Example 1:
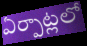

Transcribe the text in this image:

ఏర్పాట్లలో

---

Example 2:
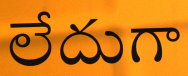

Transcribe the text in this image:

లేదుగా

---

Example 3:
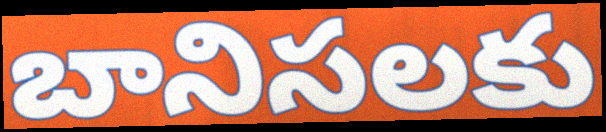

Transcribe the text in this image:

బానిసలకు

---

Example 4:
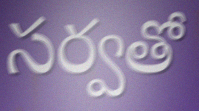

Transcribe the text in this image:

సర్వతో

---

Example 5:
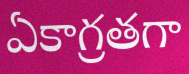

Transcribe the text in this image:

ఏకాగ్రతగా